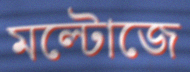
মল্টোজে